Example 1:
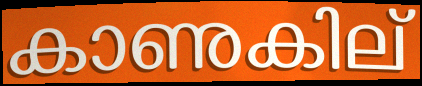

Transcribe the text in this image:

കാണുകില്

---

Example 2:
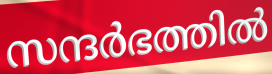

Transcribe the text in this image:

സന്ദർഭത്തിൽ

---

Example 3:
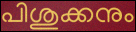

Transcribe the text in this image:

പിശുക്കനും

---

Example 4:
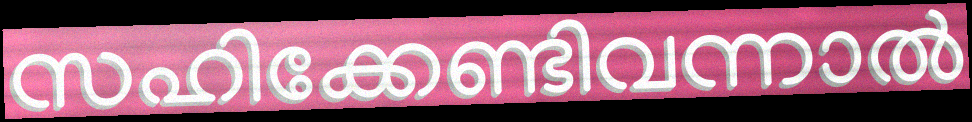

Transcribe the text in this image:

സഹിക്കേണ്ടിവന്നാൽ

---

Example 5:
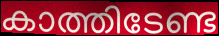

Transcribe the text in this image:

കാത്തിടേണ്ട